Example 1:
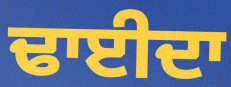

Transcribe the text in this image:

ਢਾਈਦਾ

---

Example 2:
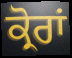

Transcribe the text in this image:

ਕ੍ਰੋਰਾਂ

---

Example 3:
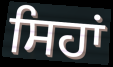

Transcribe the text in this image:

ਸਿਹਾਂ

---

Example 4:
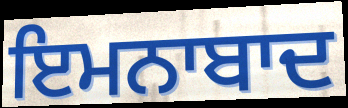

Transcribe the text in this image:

ਇਮਨਾਬਾਦ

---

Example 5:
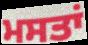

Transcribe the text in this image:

ਮਸਤਾਂ